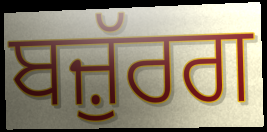
ਬਜ਼ੁੱਰਗ